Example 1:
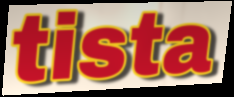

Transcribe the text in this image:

tista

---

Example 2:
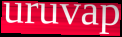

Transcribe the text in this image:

uruvap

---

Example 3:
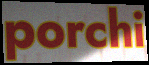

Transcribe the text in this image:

porchi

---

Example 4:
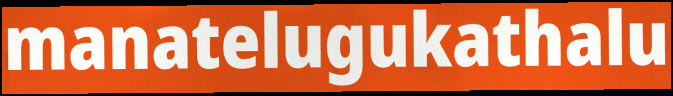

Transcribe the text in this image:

manatelugukathalu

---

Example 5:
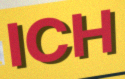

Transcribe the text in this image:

ICH